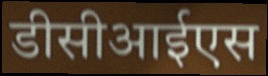
डीसीआईएस